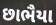
છાભૈયા